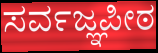
ಸರ್ವಜ್ಞಪೀಠ